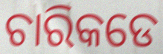
ଚାରିକଡେ